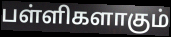
பள்ளிகளாகும்